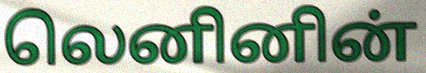
லெனினின்